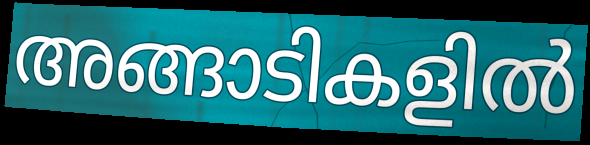
അങ്ങാടികളിൽ